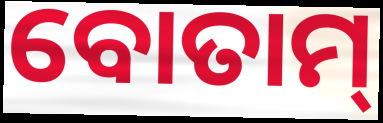
ବୋତାମ୍